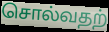
சொல்வதற்